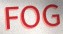
FOG